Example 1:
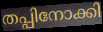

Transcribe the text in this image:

തപ്പിനോക്കി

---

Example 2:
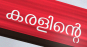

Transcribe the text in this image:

കരളിന്റെ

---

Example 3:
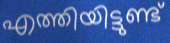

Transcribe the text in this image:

എത്തിയിട്ടുണ്ട്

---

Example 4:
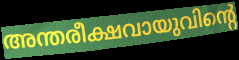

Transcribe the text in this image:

അന്തരീക്ഷവായുവിന്റെ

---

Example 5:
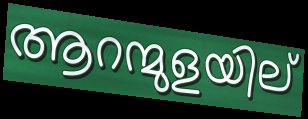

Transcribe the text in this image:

ആറന്മുളയില്